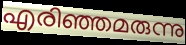
എരിഞ്ഞമരുന്നു